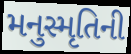
મનુસ્મૃતિની